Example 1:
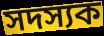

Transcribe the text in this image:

সদস্যক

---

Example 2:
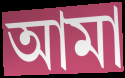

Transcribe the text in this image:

আমা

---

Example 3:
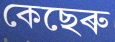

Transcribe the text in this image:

কেছেৰু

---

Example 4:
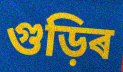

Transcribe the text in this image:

গুড়িৰ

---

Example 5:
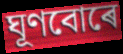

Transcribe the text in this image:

ঘূণবোৰে